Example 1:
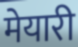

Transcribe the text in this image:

मेयारी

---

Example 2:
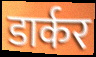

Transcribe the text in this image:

डार्कर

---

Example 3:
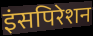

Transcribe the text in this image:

इंसपिरेशन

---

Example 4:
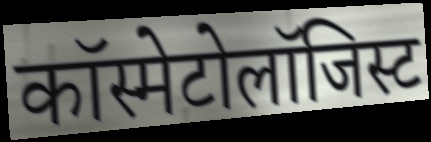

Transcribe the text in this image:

कॉस्मेटोलॉजिस्ट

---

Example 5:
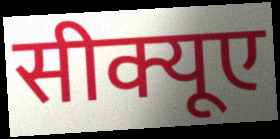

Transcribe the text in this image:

सीक्यूए